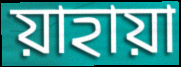
য়াহায়া